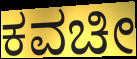
ಕವಚೀ